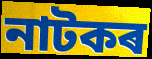
নাটকৰ